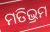
ମତିଭ୍ରମ